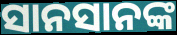
ସାନସାନଙ୍କ